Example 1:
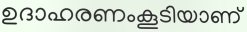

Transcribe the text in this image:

ഉദാഹരണംകൂടിയാണ്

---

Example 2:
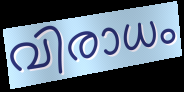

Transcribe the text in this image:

വിരാധം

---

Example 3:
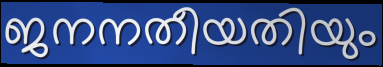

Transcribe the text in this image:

ജനനതീയതിയും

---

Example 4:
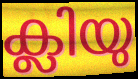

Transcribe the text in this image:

ക്ലിയു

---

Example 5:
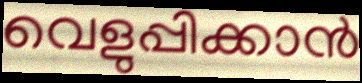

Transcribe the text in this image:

വെളുപ്പിക്കാൻ